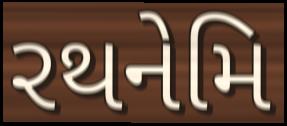
રથનેમિ